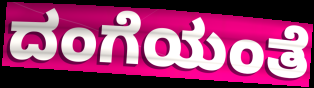
ದಂಗೆಯಂತೆ